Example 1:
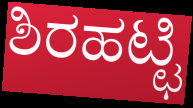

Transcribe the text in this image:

ಶಿರಹಟ್ಟಿ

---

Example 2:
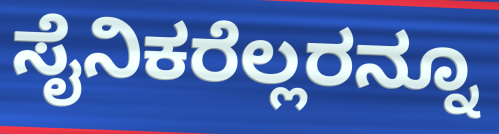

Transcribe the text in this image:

ಸೈನಿಕರೆಲ್ಲರನ್ನೂ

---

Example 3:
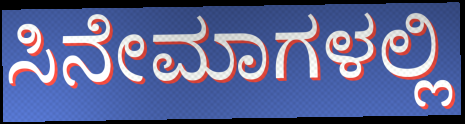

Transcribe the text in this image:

ಸಿನೇಮಾಗಳಲ್ಲಿ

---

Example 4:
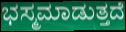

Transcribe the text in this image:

ಭಸ್ಮಮಾಡುತ್ತದೆ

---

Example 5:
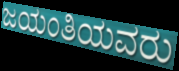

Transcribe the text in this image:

ಜಯಂತಿಯವರು